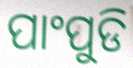
ପାଂପୁଡି